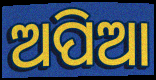
ଅପିଆ